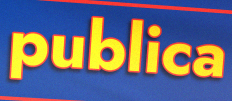
publica